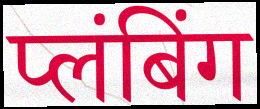
प्लंबिंग